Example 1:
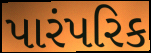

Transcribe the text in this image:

પારંપરિક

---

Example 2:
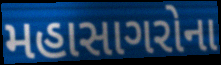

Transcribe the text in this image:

મહાસાગરોના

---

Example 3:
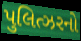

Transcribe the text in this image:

પુલિત્ઝરનો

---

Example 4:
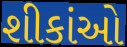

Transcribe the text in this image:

શીકાંઓ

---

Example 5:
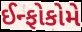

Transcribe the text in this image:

ઈન્ફોકોમે